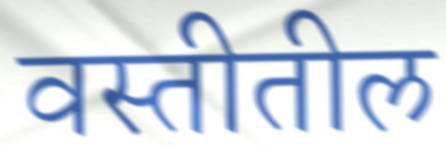
वस्तीतील